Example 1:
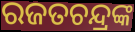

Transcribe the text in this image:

ରଜତଚନ୍ଦ୍ରଙ୍କ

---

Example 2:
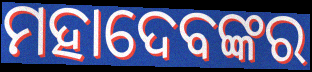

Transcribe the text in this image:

ମହାଦେବଙ୍କର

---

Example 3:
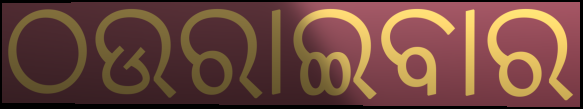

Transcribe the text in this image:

ଠଉରାଇବାର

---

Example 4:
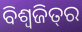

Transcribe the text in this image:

ବିଶ୍ୱଜିତ୍‌ର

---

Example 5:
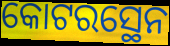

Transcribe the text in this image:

କୋଟରସ୍ଥେନ